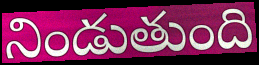
నిండుతుంది